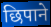
छिपाने